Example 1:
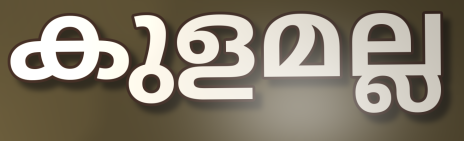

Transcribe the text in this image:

കുളമല്ല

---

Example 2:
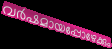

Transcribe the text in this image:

വർഷമായപ്പോഴേക്കും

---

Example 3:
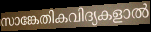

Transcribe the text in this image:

സാങ്കേതികവിദ്യകളാൽ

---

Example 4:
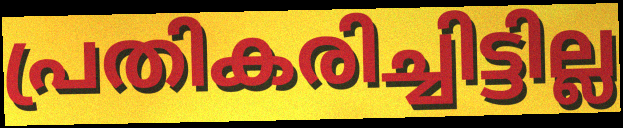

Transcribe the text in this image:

പ്രതികരിച്ചിട്ടില്ല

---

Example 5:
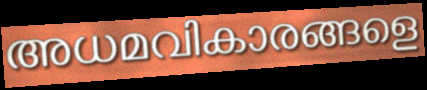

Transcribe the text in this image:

അധമവികാരങ്ങളെ